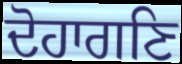
ਦੋਹਾਗਣਿ